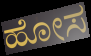
ಹೋಸ